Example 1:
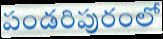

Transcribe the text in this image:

పండరిపురంలో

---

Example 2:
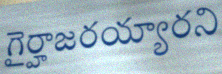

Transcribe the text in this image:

గైర్హాజరయ్యారని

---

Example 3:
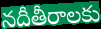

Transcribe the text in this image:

నదీతీరాలకు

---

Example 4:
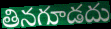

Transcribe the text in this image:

తినగూడదు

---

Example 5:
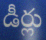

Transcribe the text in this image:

డీర్లు